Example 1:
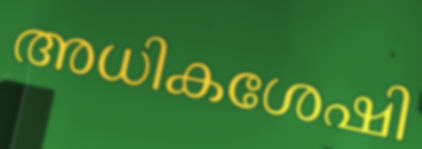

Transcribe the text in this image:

അധികശേഷി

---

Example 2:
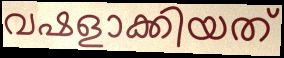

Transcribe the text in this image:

വഷളാക്കിയത്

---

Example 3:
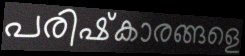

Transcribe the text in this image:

പരിഷ്‌കാരങ്ങളെ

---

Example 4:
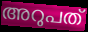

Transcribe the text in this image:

അറുപത്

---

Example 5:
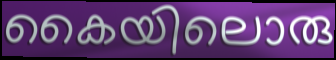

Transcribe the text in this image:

കൈയിലൊരു